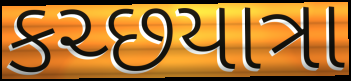
કચ્છયાત્રા